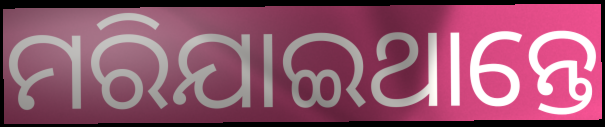
ମରିଯାଇଥାନ୍ତେ